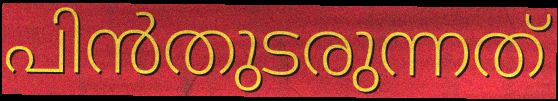
പിൻതുടരുന്നത്